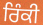
ਰਿੰਕੀ